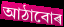
আঠাবোৰ